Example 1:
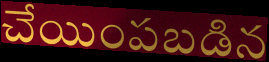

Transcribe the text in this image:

చేయింపబడిన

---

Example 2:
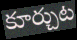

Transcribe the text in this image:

కూర్చుట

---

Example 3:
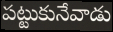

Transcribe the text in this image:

పట్టుకునేవాడు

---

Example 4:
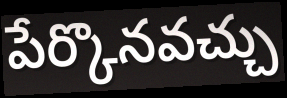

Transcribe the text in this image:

పేర్కొనవచ్చు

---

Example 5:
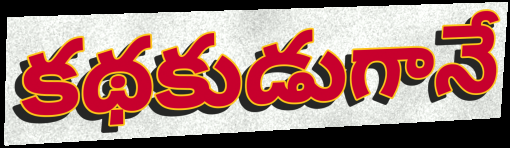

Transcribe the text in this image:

కథకుడుగానే